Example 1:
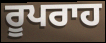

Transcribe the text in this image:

ਰੂਪਰਾਹ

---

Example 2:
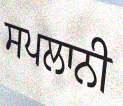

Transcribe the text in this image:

ਸਪਲਾਨੀ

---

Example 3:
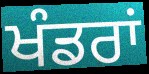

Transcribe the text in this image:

ਖੰਡਰਾਂ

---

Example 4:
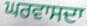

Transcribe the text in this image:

ਘਰਵਾਸਦਾ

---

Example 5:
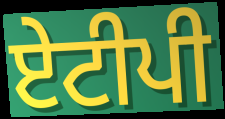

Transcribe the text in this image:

ਏਟੀਪੀ